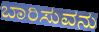
ಬಾರಿಸುವನು